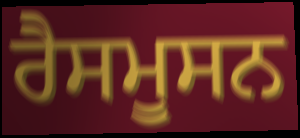
ਰੈਸਮੂਸਨ